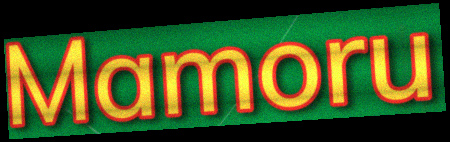
Mamoru